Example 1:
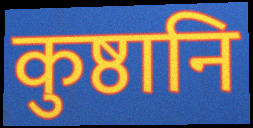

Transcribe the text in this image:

कुष्ठानि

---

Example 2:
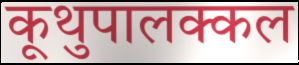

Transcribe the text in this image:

कूथुपालक्कल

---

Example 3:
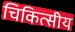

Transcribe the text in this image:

चिकित्सीय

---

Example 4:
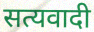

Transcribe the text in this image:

सत्यवादी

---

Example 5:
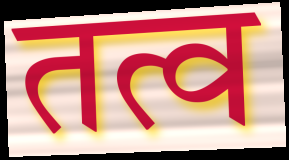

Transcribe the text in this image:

तत्व